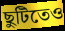
ছুটিতেও